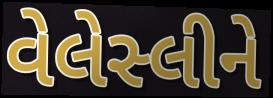
વેલેસ્લીને